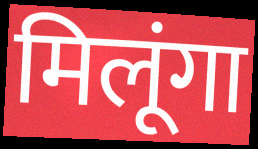
मिलूंगा